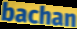
bachan